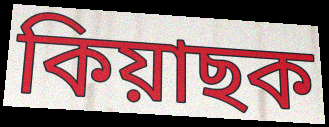
কিয়াছক